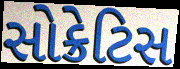
સોક્રેટિસ